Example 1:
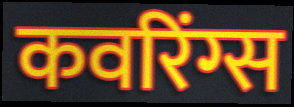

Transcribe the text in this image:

कवरिंग्स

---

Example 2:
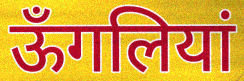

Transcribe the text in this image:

ऊँगलियां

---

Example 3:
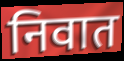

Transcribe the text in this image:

निवात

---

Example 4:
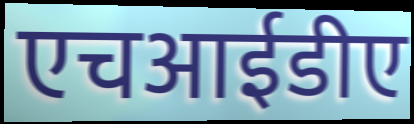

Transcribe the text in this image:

एचआईडीए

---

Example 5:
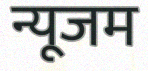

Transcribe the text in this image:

न्यूजम